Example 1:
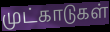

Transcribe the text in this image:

முட்காடுகள்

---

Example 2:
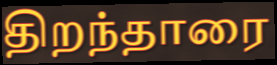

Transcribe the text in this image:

திறந்தாரை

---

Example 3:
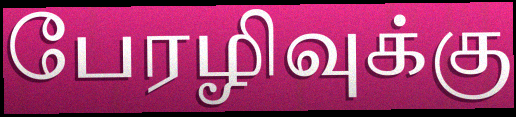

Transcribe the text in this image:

பேரழிவுக்கு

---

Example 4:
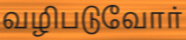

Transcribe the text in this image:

வழிபடுவோர்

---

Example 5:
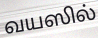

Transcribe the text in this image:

வயஸில்